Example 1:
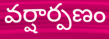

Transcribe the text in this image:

వర్షార్పణం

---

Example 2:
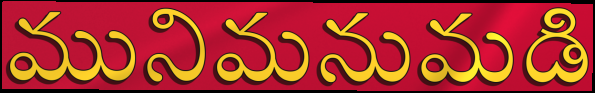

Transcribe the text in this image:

మునిమనుమడి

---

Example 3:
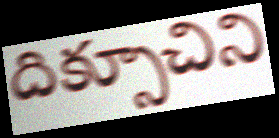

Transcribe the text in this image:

దిక్సూచిని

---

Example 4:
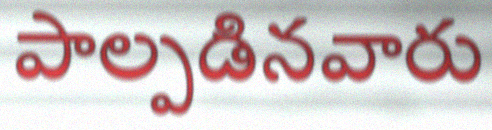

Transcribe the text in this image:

పాల్పడినవారు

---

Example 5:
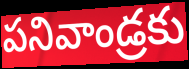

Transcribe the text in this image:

పనివాండ్రకు